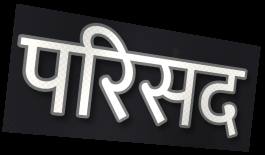
परिसद